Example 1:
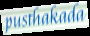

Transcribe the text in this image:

pusthakada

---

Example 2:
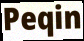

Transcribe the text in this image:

Peqin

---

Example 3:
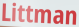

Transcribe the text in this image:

Littman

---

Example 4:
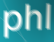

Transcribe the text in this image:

phl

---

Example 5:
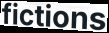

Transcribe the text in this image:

fictions